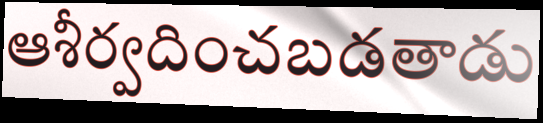
ఆశీర్వదించబడతాడు